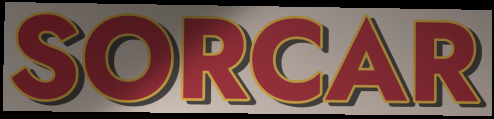
SORCAR